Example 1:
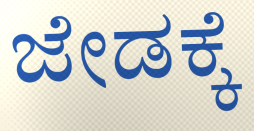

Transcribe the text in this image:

ಜೇಡಕ್ಕೆ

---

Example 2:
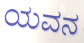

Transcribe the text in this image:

ಯವನ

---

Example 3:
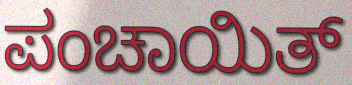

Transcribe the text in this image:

ಪಂಚಾಯಿತ್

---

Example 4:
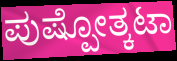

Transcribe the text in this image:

ಪುಷ್ಪೋತ್ಕಟಾ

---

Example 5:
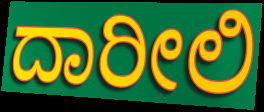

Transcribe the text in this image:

ದಾರೀಲಿ